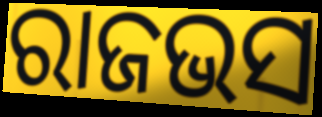
ରାଜଭସ